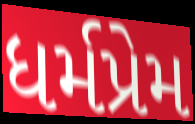
ધર્મપ્રેમ